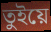
তুইয়ে